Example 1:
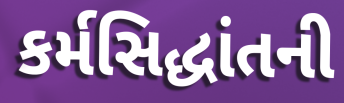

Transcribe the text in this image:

કર્મસિદ્ધાંતની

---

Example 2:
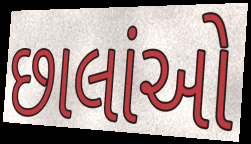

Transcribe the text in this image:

છાલાંઓ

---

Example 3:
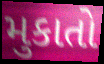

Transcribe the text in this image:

મુકાતો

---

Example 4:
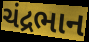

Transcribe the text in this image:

ચંદ્રભાન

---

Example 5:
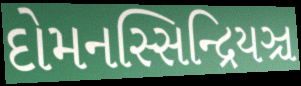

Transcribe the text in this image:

દોમનસ્સિન્દ્રિયઞ્ચ